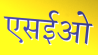
एसईओ